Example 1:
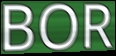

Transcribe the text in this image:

BOR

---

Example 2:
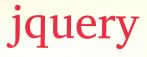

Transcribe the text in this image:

jquery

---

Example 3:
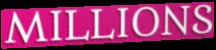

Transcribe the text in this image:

MILLIONS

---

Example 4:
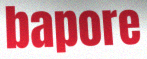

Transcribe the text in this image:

bapore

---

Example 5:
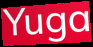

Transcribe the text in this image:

Yuga